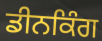
ਡੀਨਕਿੰਗ